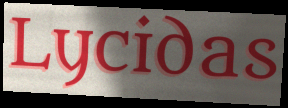
Lycidas